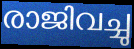
രാജിവച്ചു